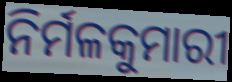
ନିର୍ମଳକୁମାରୀ